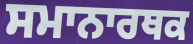
ਸਮਾਨਾਰਥਕ